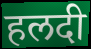
हलदी